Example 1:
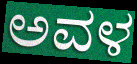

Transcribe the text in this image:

ಅವಳ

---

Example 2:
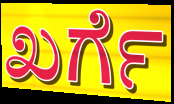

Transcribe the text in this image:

ಖರ್ಗೆ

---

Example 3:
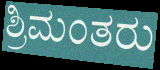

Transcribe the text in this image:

ಶ್ರಿಮಂತರು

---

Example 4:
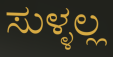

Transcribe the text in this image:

ಸುಳ್ಳಲ್ಲ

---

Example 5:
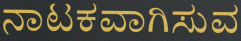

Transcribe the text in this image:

ನಾಟಕವಾಗಿಸುವ